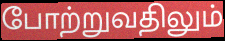
போற்றுவதிலும்